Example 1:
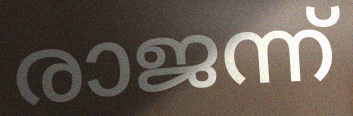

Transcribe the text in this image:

രാജന്ന്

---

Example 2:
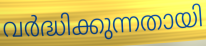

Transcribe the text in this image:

വർദ്ധിക്കുന്നതായി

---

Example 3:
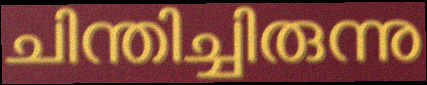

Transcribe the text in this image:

ചിന്തിച്ചിരുന്നു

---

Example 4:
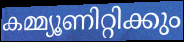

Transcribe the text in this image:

കമ്മ്യൂണിറ്റിക്കും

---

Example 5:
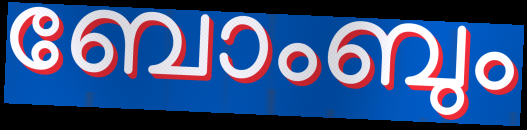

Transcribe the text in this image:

ബോംബും